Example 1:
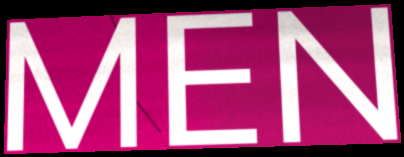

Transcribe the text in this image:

MEN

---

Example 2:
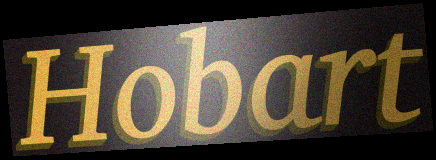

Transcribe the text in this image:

Hobart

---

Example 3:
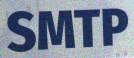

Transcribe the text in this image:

SMTP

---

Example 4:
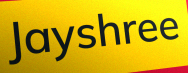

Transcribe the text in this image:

Jayshree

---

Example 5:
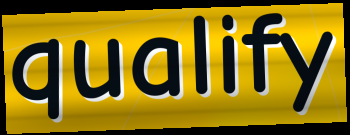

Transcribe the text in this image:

qualify